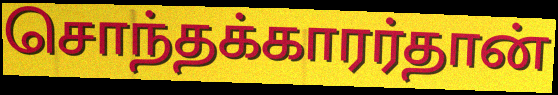
சொந்தக்காரர்தான்